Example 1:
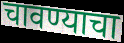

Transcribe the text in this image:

चावण्याचा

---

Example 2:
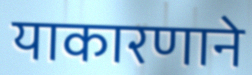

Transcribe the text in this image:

याकारणाने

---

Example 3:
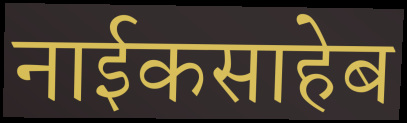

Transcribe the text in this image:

नाईकसाहेब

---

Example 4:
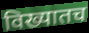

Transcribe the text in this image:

विख्यातच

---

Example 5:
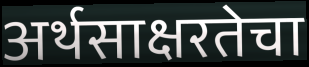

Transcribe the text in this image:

अर्थसाक्षरतेचा